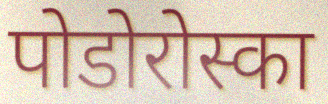
पोडोरोस्का